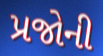
પ્રજોની